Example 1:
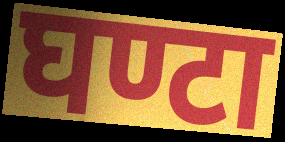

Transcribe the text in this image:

घण्टा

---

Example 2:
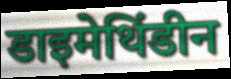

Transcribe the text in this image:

डाइमेथिंडीन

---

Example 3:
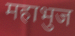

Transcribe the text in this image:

महाभुज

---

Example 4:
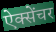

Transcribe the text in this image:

ऐक्सेंचर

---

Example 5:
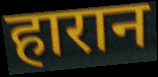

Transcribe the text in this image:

हारान